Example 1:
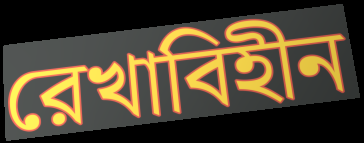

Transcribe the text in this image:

রেখাবিহীন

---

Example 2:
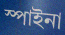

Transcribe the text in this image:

স্পাইনা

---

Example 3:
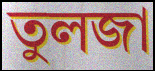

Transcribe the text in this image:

তুলজা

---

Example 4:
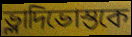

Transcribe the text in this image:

ভ্লাদিভোস্তকে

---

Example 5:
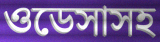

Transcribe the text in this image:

ওডেসাসহ